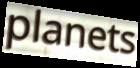
planets